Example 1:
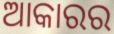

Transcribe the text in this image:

ଆକାରର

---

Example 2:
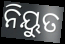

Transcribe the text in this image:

ନିୟୁତ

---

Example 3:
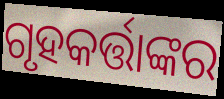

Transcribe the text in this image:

ଗୃହକର୍ତ୍ତାଙ୍କର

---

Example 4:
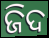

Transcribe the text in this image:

ଜିଦ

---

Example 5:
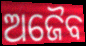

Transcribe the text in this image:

ଅଜୈବ